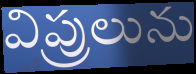
విప్రులును